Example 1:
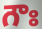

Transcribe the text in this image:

గౌః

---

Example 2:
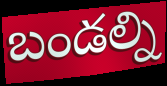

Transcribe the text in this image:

బండల్ని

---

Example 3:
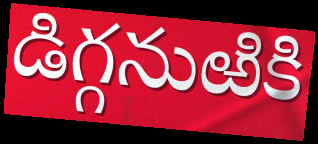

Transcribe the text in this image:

డిగ్గనుఱికి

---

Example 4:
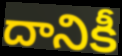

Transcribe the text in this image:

దానికీ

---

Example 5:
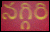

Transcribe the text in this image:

నగ్గిరి